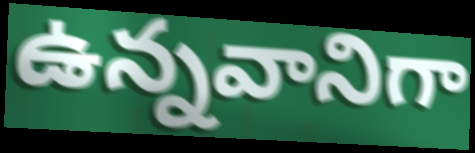
ఉన్నవానిగా